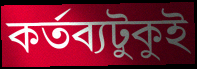
কর্তব্যটুকুই